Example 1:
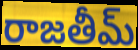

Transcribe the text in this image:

రాజతీమ్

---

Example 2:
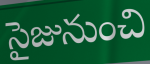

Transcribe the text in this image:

సైజునుంచి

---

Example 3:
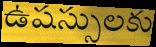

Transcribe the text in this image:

ఉషస్సులకు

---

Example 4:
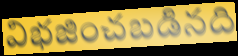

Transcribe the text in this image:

విభజించబడినది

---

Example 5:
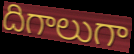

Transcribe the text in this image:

దిగాలుగా